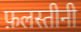
फ़लस्तीनी